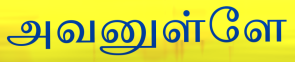
அவனுள்ளே